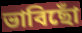
ভাবিছোঁ